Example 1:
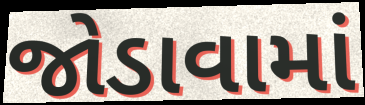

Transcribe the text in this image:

જોડાવામાં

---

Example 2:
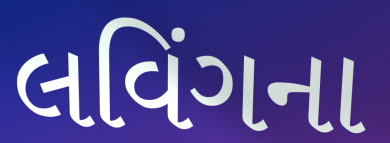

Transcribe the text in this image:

લવિંગના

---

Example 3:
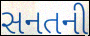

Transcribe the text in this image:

સનતની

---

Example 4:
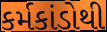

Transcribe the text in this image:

કર્મકાંડોથી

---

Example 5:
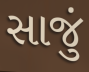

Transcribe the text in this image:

સાજું